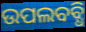
ଉପଲବବ୍ଧି